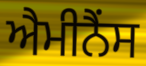
ਐਮੀਨੈਂਸ